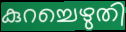
കുറച്ചെഴുതി